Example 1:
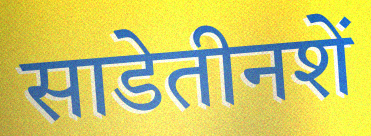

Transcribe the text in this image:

साडेतीनशें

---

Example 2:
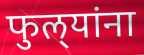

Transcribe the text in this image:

फुल्यांना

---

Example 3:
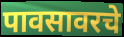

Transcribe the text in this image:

पावसावरचे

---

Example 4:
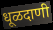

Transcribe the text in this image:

धूळदाणी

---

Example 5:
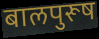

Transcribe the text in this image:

बालपुरूष